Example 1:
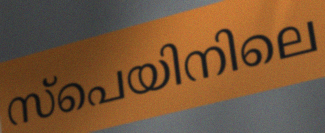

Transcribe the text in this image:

സ്പെയിനിലെ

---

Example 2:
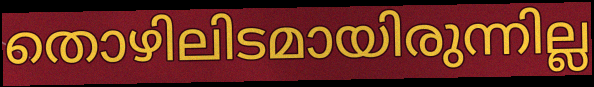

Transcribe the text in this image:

തൊഴിലിടമായിരുന്നില്ല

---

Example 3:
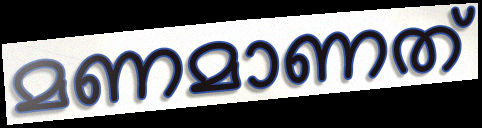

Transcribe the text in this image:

മണമാണത്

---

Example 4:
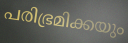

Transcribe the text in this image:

പരിഭ്രമിക്കയും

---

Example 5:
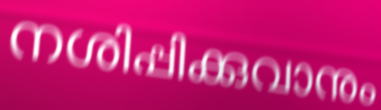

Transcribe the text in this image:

നശിപ്പിക്കുവാനും